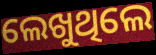
ଲେଖୁଥିଲେ